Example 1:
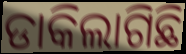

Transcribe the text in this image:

ଡାକିଲାଗିଛି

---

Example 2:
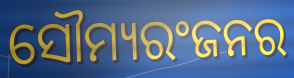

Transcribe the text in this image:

ସୌମ୍ୟରଂଜନର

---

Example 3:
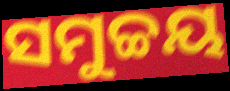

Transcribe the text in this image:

ସମୁଚ୍ଚୟ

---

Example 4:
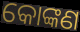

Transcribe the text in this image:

କୋଙ୍କଣ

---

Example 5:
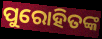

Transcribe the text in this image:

ପୁରୋହିତଙ୍କ